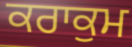
ਕਰਾਕੁਮ